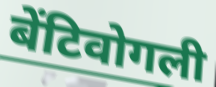
बेंटिवोगली